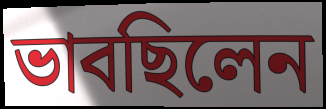
ভাবছিলেন